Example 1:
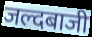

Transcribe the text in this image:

जल्दबाजी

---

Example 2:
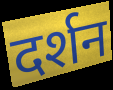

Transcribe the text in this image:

दर्शन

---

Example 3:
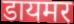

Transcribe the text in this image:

डायमर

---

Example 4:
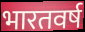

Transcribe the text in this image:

भारतवर्ष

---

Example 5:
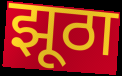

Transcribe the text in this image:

झूठा